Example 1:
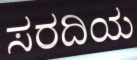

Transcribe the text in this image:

ಸರದಿಯ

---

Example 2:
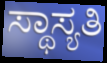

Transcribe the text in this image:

ಸ್ಥಾಸ್ಯತಿ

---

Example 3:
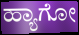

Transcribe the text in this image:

ಹ್ಯಾಗೋ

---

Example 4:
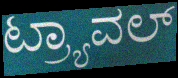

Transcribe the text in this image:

ಟ್ರ್ಯಾವಲ್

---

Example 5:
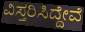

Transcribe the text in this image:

ವಿಸ್ತರಿಸಿದ್ದೇವೆ